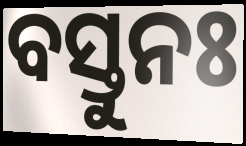
ବସ୍ତୁନଃ